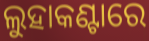
ଲୁହାକଣ୍ଟାରେ